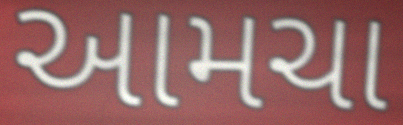
આમચા